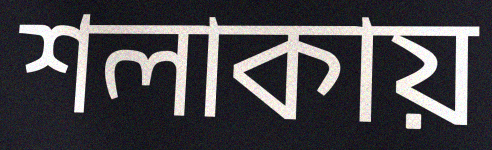
শলাকায়